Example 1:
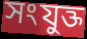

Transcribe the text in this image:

সংযুক্ত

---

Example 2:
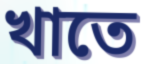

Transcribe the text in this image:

খাতে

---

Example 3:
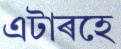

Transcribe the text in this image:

এটাৰহে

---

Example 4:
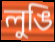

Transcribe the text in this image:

লুঙি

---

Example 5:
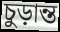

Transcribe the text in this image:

চুড়ান্ত